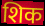
शिक